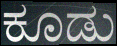
ಕೂಡು